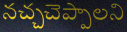
నచ్చచెప్పాలని